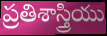
ప్రతిశాస్త్రియు